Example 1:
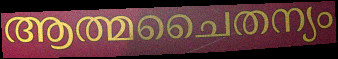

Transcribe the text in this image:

ആത്മചൈതന്യം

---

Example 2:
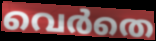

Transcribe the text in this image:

വെർതെ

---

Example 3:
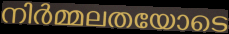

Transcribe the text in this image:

നിർമ്മലതയോടെ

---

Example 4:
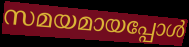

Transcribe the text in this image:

സമയമായപ്പോൾ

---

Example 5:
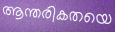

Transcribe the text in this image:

ആന്തരികതയെ